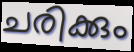
ചരിക്കും